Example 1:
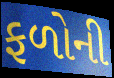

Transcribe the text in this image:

ફળોની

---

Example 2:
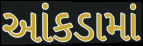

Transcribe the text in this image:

આંકડામાં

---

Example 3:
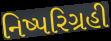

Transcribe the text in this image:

નિષ્પરિગ્રહી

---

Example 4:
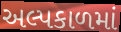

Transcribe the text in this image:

અલ્પકાળમાં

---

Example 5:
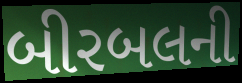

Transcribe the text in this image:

બીરબલની